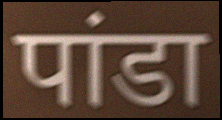
पांडा